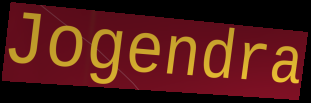
Jogendra